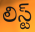
లిస్ట్